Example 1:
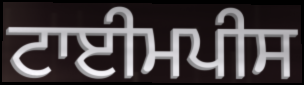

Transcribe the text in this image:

ਟਾਈਮਪੀਸ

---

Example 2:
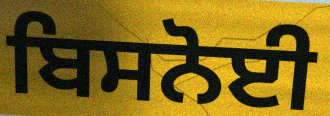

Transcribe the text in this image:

ਬਿਸਨੋਈ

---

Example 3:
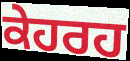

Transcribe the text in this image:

ਕੇਹਰਹ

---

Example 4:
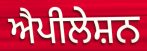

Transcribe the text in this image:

ਐਪੀਲੇਸ਼ਨ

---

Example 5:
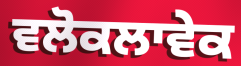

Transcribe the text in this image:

ਵਲੋਕਲਾਵੇਕ